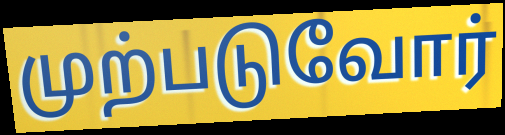
முற்படுவோர்